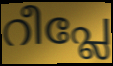
റീപ്ലേ